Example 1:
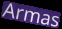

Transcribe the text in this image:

Armas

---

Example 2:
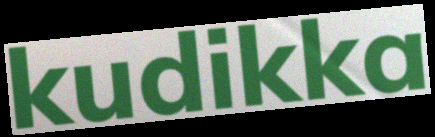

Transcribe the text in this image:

kudikka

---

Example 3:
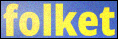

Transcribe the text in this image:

folket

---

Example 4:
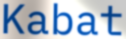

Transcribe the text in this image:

Kabat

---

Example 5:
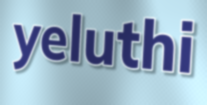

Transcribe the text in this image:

yeluthi